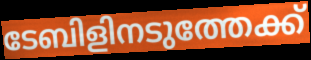
ടേബിളിനടുത്തേക്ക്